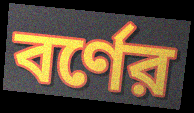
বর্ণের